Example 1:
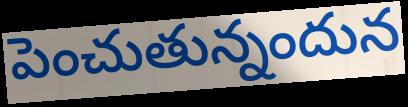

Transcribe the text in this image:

పెంచుతున్నందున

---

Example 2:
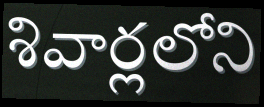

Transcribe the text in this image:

శివార్లలోని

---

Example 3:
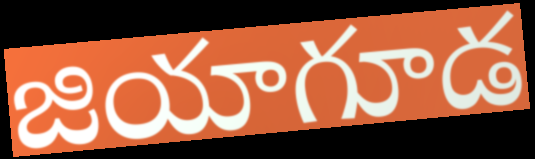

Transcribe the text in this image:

జియాగూడ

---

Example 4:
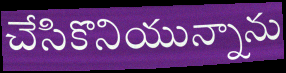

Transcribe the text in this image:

చేసికొనియున్నాను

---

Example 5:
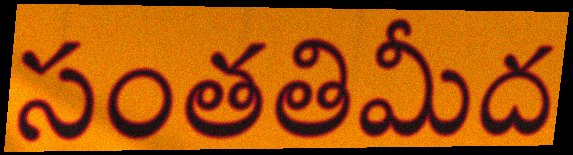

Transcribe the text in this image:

సంతతిమీద